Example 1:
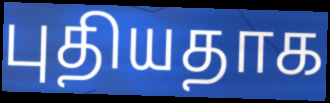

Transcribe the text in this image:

புதியதாக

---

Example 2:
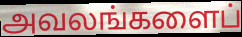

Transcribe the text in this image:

அவலங்களைப்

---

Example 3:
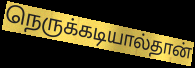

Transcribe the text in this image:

நெருக்கடியால்தான்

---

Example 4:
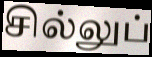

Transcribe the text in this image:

சில்லுப்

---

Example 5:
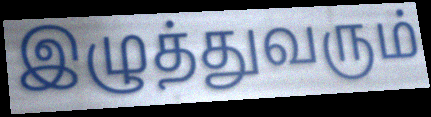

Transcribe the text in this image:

இழுத்துவரும்